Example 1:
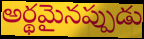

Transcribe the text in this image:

అర్థమైనప్పుడు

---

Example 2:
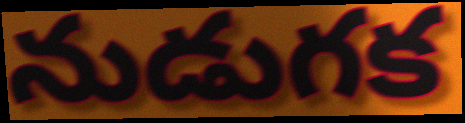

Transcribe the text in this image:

నుడుగక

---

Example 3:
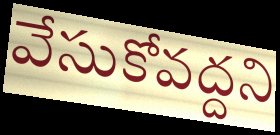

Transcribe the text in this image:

వేసుకోవద్దని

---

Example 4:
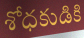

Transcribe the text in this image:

శోధకుడికి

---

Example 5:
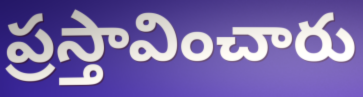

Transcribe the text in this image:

ప్రస్తావించారు